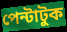
পেন্টাটুক